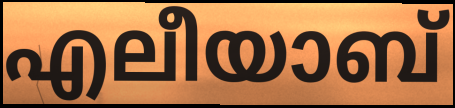
എലീയാബ്